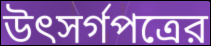
উৎসর্গপত্রের